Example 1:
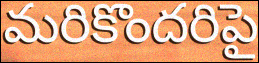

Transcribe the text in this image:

మరికొందరిపై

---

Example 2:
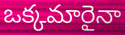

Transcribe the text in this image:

ఒక్కమారైనా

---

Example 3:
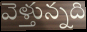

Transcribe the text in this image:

వెళ్తున్నది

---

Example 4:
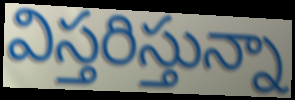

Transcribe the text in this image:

విస్తరిస్తున్నా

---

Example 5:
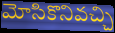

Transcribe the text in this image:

మోసికొనివచ్చి